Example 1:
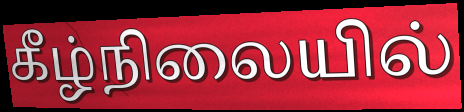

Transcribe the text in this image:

கீழ்நிலையில்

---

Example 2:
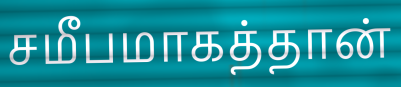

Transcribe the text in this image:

சமீபமாகத்தான்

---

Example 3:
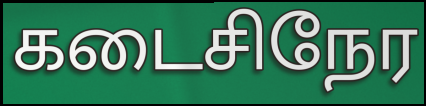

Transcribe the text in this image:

கடைசிநேர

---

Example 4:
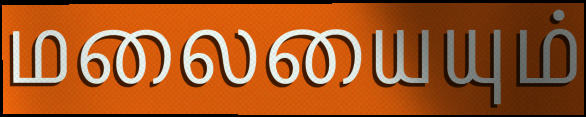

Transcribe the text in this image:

மலையையும்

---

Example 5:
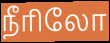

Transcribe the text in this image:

நீரிலோ